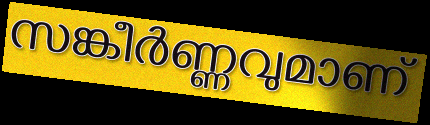
സങ്കീർണ്ണവുമാണ്